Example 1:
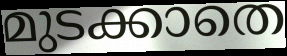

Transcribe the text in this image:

മുടക്കാതെ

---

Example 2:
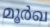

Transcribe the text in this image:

മൂർഖ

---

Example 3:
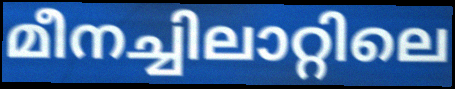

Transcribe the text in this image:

മീനച്ചിലാറ്റിലെ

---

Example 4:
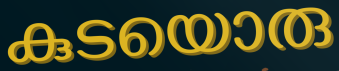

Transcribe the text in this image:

കുടയൊരു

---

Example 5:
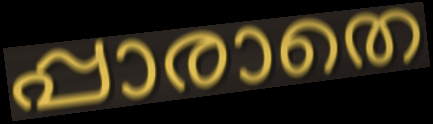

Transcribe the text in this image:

പ്പാരാതെ